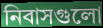
নিবাসগুলো